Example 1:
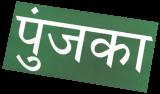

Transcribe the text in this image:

पुंजका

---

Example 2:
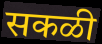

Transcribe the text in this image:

सकळी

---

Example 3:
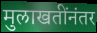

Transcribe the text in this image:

मुलाखतींनंतर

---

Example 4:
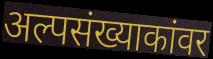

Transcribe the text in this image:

अल्पसंख्याकांवर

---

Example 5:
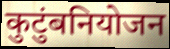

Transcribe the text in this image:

कुटुंबनियोजन